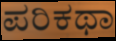
ಪರಿಕಥಾ